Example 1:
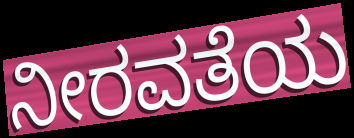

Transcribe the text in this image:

ನೀರವತೆಯ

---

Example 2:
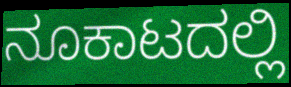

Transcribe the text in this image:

ನೂಕಾಟದಲ್ಲಿ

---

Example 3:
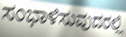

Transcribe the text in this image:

ಸಂಭಾಳಿಸುವುದರಲ್ಲಿ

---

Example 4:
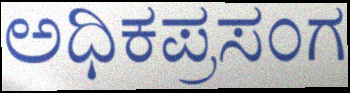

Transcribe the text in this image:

ಅಧಿಕಪ್ರಸಂಗ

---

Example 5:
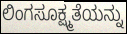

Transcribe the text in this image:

ಲಿಂಗಸೂಕ್ಷ್ಮತೆಯನ್ನು